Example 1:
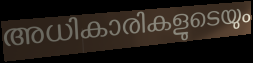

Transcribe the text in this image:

അധികാരികളുടെയും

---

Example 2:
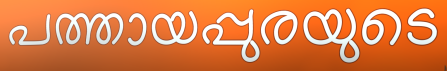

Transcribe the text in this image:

പത്തായപ്പുരയുടെ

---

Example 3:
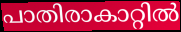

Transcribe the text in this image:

പാതിരാകാറ്റിൽ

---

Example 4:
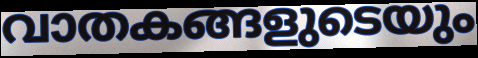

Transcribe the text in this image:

വാതകങ്ങളുടെയും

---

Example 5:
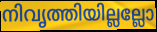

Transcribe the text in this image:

നിവൃത്തിയില്ലല്ലോ